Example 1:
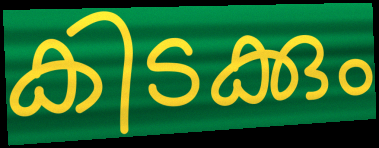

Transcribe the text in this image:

കിടക്കും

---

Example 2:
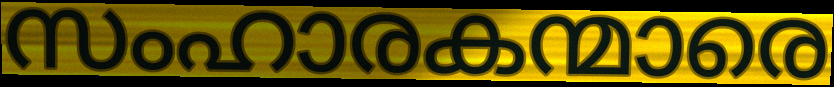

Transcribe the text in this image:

സംഹാരകന്മാരെ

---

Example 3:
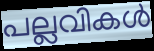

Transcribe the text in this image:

പല്ലവികൾ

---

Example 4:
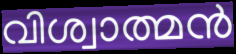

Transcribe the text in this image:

വിശ്വാത്മൻ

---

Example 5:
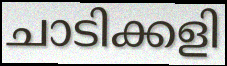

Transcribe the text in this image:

ചാടിക്കളി